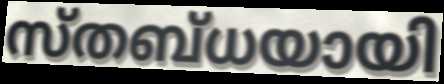
സ്തബ്ധയായി